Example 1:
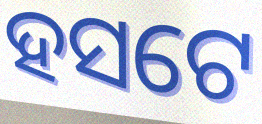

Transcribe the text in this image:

ହସଟେ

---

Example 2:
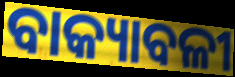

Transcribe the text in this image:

ବାକ୍ୟାବଳୀ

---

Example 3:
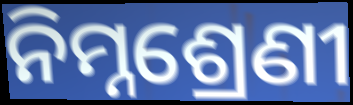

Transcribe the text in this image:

ନିମ୍ନଶ୍ରେଣୀ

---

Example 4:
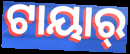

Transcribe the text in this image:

ଟାୟାର୍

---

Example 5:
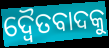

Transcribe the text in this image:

ଦ୍ୱୈତବାଦକୁ